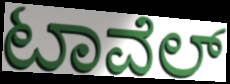
ಟಾವೆಲ್